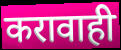
करावाही